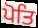
ਪੋਤਿ